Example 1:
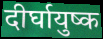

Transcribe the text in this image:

दीर्घायुष्क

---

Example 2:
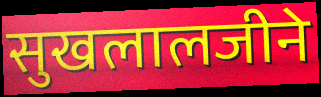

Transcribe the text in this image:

सुखलालजीने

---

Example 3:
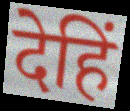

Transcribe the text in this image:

देहिं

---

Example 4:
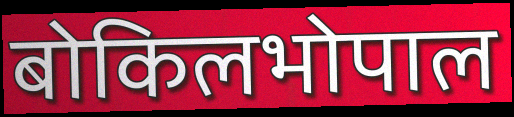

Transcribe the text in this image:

बोकिलभोपाल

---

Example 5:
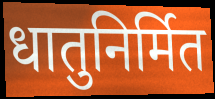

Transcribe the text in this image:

धातुनिर्मित